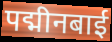
पद्मीनबाई